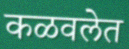
कळवलेत